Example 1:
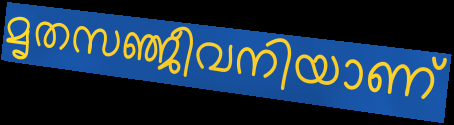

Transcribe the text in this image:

മൃതസഞ്ജീവനിയാണ്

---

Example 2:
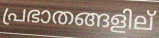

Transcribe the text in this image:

പ്രഭാതങ്ങളില്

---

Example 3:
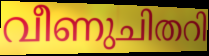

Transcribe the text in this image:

വീണുചിതറി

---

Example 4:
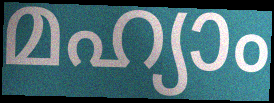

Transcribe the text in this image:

മഹ്യാം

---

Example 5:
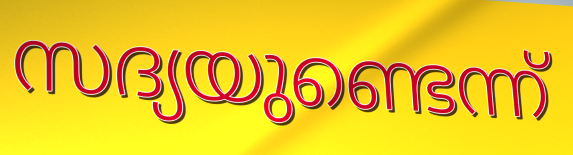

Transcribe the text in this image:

സദ്യയുണ്ടെന്ന്